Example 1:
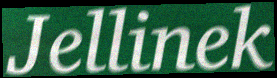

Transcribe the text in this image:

Jellinek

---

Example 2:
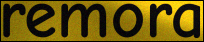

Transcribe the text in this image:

remora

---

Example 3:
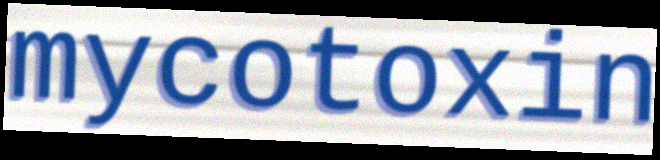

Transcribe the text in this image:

mycotoxin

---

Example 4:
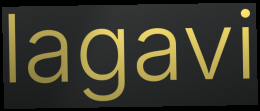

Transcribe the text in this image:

lagavi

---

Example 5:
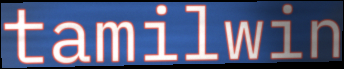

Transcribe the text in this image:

tamilwin